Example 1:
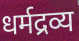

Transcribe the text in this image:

धर्मद्रव्य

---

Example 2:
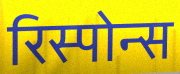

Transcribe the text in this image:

रिस्पोन्स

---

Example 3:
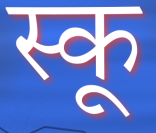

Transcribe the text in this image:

स्कू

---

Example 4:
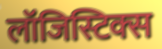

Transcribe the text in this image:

लॉजिस्टिक्‍स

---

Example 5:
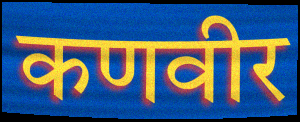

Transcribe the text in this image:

कणवीर